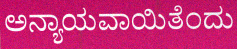
ಅನ್ಯಾಯವಾಯಿತೆಂದು